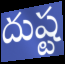
దుష్ట